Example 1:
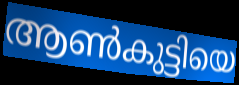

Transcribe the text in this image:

ആൺകുട്ടിയെ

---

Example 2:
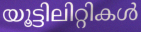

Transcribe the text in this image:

യൂട്ടിലിറ്റികൾ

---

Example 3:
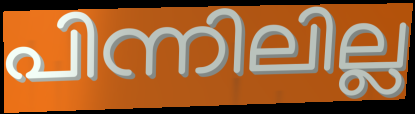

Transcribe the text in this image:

പിന്നിലില്ല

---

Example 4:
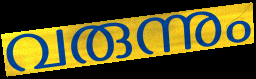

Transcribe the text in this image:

വരുന്നും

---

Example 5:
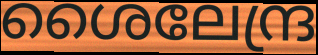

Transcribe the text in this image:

ശൈലേന്ദ്ര